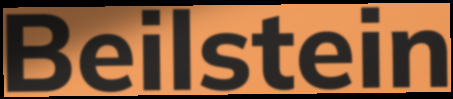
Beilstein